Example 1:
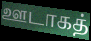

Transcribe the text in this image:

ஊடாகத்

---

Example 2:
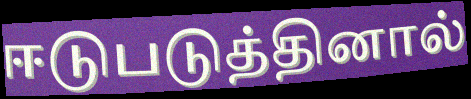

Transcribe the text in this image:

ஈடுபடுத்தினால்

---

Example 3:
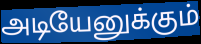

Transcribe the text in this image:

அடியேனுக்கும்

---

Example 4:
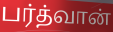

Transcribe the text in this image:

பர்த்வான்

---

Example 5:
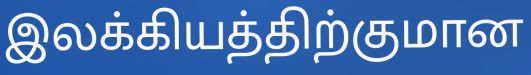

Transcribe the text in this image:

இலக்கியத்திற்குமான